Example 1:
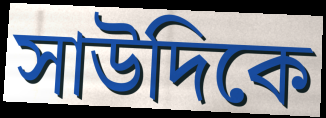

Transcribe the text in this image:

সাউদিকে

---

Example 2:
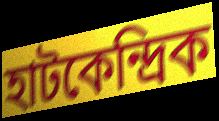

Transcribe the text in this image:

হাটকেন্দ্রিক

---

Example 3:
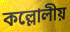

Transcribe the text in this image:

কল্লোলীয়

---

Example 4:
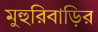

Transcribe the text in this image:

মুহুরিবাড়ির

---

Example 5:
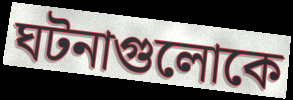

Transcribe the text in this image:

ঘটনাগুলোকে